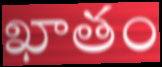
ఖాతం